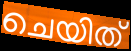
ചെയിത്